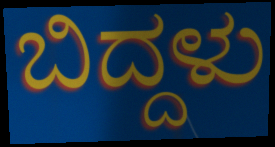
ಬಿದ್ದಳು